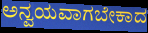
ಅನ್ವಯವಾಗಬೇಕಾದ